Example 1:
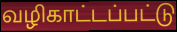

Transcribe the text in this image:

வழிகாட்டப்பட்டு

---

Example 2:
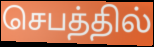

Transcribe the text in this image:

செபத்தில்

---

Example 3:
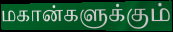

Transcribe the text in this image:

மகான்களுக்கும்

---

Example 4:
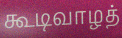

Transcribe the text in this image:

கூடிவாழத்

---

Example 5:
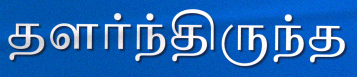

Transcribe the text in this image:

தளர்ந்திருந்த